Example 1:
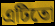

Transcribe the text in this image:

এটিতো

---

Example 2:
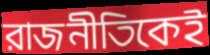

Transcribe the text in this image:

রাজনীতিকেই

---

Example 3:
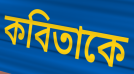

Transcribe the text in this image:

কবিতাকে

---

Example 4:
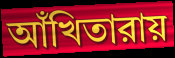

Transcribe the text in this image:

আঁখিতারায়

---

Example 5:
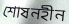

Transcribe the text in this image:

শোষনহীন